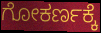
ಗೋಕರ್ಣಕ್ಕೆ